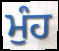
ਮੁੰਹ